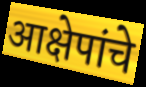
आक्षेपांचे